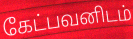
கேட்பவனிடம்